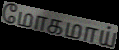
மோகமாய்